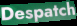
Despatch